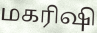
மகரிஷி